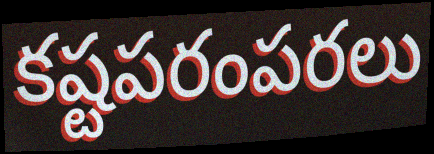
కష్టపరంపరలు